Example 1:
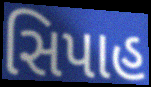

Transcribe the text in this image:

સિપાહ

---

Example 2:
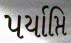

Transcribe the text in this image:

પર્યાપ્તિ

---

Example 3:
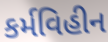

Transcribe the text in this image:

કર્મવિહીન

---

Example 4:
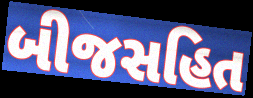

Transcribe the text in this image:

બીજસહિત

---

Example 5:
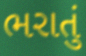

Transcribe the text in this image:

ભરાતું